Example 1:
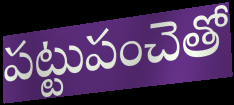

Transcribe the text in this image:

పట్టుపంచెతో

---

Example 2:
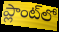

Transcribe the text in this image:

ప్లాంట్‌లో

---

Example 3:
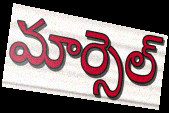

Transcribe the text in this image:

మార్సెల్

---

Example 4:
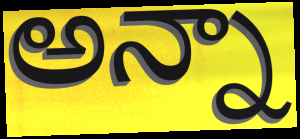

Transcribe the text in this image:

అన్నా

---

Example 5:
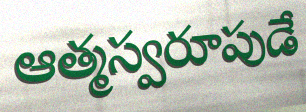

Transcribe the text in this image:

ఆత్మస్వరూపుడే